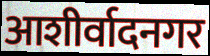
आशीर्वादनगर